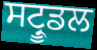
ਸਟ੍ਰੂਡਲ